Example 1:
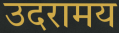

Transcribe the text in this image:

उदरामय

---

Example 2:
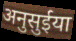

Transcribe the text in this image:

अनुसुईया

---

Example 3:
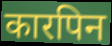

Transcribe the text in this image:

कारपिन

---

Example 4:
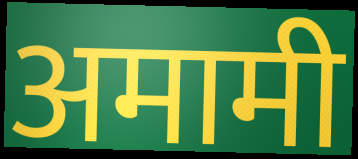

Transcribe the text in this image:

अमामी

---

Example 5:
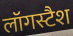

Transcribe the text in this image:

लॉगस्टैश